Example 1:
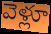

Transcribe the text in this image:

వెళ్లూ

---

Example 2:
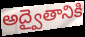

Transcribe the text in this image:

అద్వైతానికి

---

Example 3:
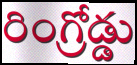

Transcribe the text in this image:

రింగ్రోడ్డు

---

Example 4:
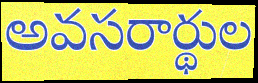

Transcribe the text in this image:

అవసరార్థుల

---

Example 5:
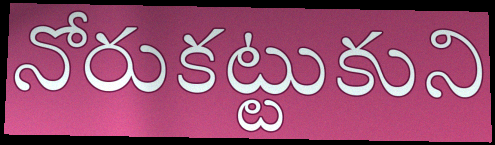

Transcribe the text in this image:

నోరుకట్టుకుని